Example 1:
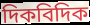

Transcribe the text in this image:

দিকবিদিক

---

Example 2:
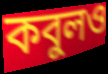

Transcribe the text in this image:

কবুলও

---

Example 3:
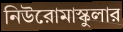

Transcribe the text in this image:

নিউরোমাস্কুলার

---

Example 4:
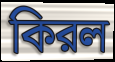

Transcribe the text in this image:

কিরল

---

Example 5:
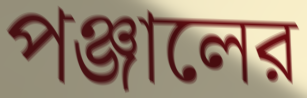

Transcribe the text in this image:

পঞ্জালের